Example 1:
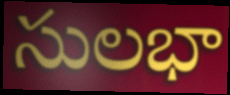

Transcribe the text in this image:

సులభా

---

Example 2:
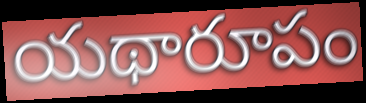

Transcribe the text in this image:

యథారూపం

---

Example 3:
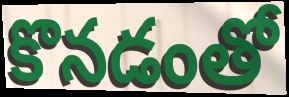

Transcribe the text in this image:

కొనడంతో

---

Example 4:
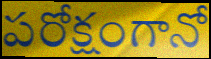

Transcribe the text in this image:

పరోక్షంగానో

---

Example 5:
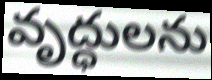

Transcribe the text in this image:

వృద్ధులను